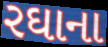
રઘાના